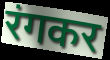
रंगकर